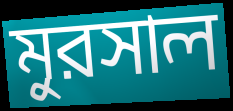
মুরসাল